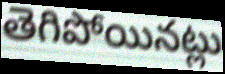
తెగిపోయినట్లు